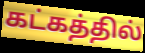
கட்கத்தில்